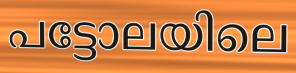
പട്ടോലയിലെ